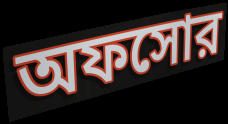
অফসোর